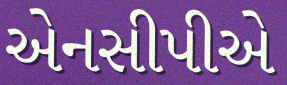
એનસીપીએ